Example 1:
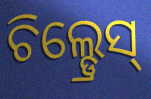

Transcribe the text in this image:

ଚିଲ୍ଡ୍ରେସ୍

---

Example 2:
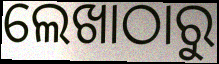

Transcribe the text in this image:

ଲେଖାଠାରୁ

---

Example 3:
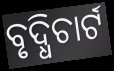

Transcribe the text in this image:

ବୃଦ୍ଧିଚାର୍ଟ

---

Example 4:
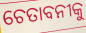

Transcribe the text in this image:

ଚେତାବନୀକୁ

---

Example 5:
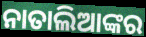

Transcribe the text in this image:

ନାତାଲିଆଙ୍କର